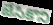
జేసికొని